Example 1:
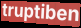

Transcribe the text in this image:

truptiben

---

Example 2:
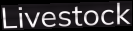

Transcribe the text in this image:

Livestock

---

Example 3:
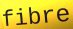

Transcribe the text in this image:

fibre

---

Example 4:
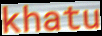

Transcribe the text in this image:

khatu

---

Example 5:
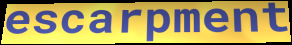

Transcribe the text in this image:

escarpment